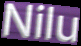
Nilu